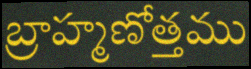
బ్రాహ్మణోత్తము